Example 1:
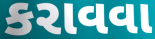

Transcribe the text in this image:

કરાવવા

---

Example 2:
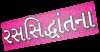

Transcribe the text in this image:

રસસિદ્ધાંતના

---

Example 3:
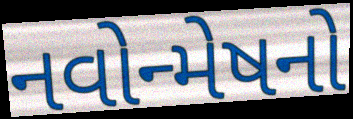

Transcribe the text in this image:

નવોન્મેષનો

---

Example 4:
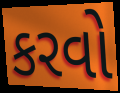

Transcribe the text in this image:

કરવો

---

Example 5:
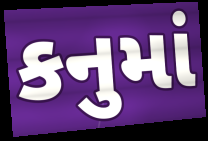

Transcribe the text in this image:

કનુમાં